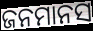
ଜନମାନସ